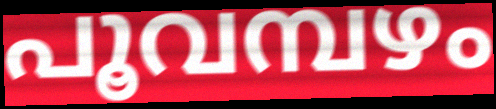
പൂവമ്പഴം